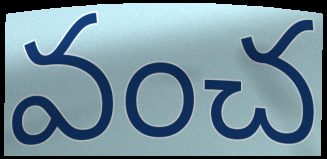
వంచ